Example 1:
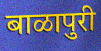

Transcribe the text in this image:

बाळापुरी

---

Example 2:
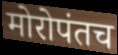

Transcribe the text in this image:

मोरोपंतच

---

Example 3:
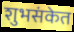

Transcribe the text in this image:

शुभसंकेत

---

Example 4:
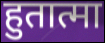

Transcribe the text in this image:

हुतात्मा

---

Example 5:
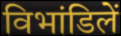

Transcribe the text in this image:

विभांडिलें